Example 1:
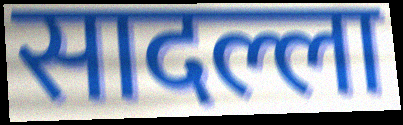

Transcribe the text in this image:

सादल्ला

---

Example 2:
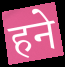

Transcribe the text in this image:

हने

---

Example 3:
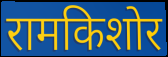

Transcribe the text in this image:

रामकिशोर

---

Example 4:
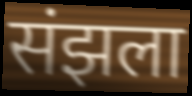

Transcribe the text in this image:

संझला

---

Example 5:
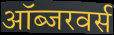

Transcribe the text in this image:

ऑब्जरवर्स